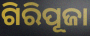
ଗିରିପୂଜା